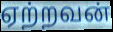
ஏற்றவன்